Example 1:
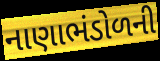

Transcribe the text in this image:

નાણાભંડોળની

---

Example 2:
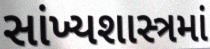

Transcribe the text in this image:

સાંખ્યશાસ્ત્રમાં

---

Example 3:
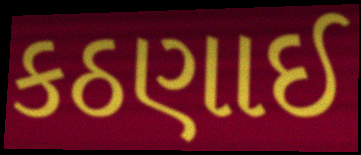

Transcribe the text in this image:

કઠણાઈ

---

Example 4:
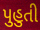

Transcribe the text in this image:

પુહુતી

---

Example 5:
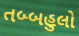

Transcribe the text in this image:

તબ્બહુલો